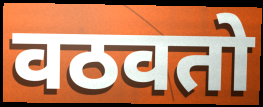
वठवतो